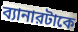
ব্যানারটাকে